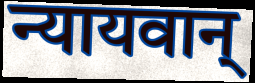
न्यायवान्